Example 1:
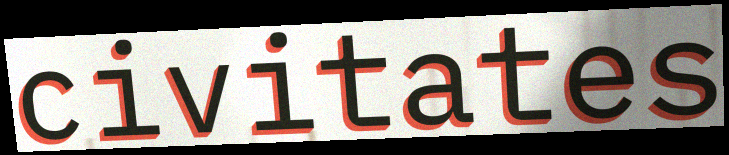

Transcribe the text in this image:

civitates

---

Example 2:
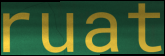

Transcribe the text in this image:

ruat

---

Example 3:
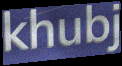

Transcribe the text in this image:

khubj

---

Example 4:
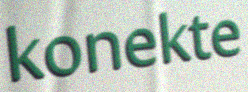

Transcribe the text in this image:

konekte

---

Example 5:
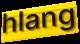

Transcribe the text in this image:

hlang